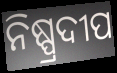
ନିଷ୍ପ୍ରଦୀପ